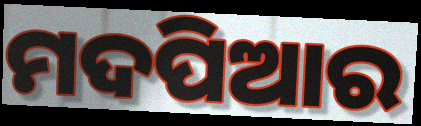
ମଦପିଆର